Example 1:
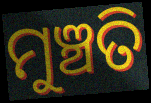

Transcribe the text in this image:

ମୁଞ୍ଚତି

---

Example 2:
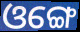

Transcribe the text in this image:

ଓଙ୍ଗେ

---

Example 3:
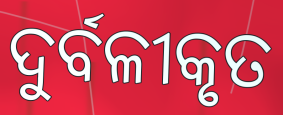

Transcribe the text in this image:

ଦୁର୍ବଳୀକୃତ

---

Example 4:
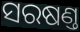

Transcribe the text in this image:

ସରଷଣ୍ତ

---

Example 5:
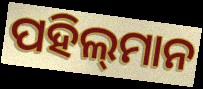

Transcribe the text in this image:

ପହିଲ୍‌ମାନ